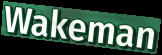
Wakeman